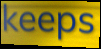
keeps